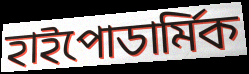
হাইপোডার্মিক